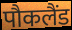
पौकलैंड